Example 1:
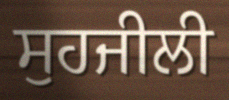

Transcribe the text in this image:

ਸੁਹਜੀਲੀ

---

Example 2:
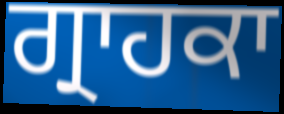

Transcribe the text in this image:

ਗ੍ਰਾਹਕਾ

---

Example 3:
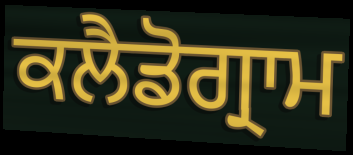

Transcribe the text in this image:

ਕਲੈਡੋਗ੍ਰਾਮ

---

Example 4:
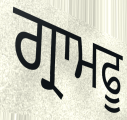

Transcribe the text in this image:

ਗ੍ਰਾਮਫੂ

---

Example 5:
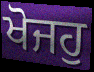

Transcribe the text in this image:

ਖੋਜਹੁ